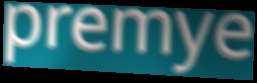
premye